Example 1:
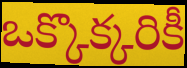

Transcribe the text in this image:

ఒక్కొక్కరికీ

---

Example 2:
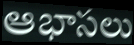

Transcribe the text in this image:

ఆభాసలు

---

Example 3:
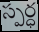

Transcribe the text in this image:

స్పర్ధ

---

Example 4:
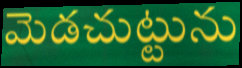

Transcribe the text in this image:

మెడచుట్టును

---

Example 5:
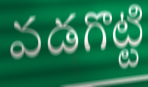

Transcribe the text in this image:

వడగొట్టి